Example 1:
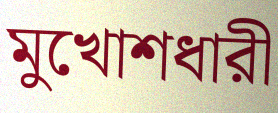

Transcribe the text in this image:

মুখোশধারী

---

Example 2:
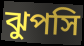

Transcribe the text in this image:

ঝুপসি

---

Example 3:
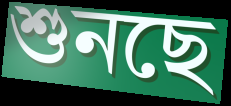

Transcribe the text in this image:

শুনছে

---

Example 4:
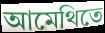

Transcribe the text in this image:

আমেথিতে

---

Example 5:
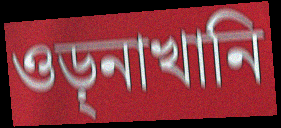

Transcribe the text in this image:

ওড়্নাখানি